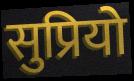
सुप्रियो